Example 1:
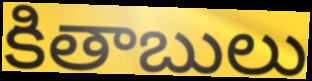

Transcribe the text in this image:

కితాబులు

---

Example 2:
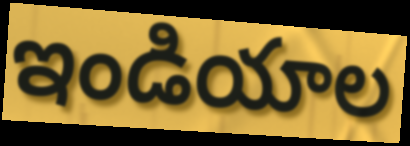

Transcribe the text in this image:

ఇండియాల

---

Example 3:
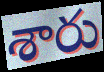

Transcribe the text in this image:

శారు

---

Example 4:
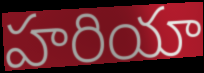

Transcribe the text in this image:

హరియా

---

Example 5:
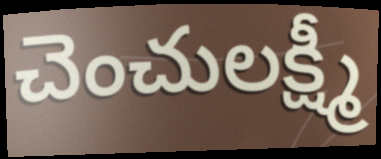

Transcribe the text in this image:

చెంచులక్ష్మీ